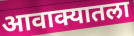
आवाक्यातला